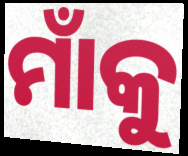
ମାଁକୁ